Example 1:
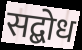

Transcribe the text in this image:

सद्बोध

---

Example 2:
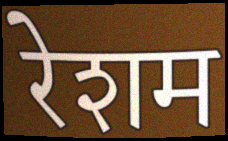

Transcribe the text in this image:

रेशम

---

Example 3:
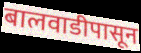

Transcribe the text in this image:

बालवाडीपासून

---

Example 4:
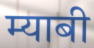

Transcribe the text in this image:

म्याबी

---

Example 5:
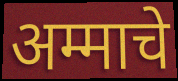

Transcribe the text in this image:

अम्माचे